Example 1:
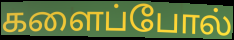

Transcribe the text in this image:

களைப்போல்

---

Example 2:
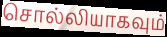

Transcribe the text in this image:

சொல்லியாகவும்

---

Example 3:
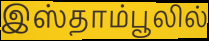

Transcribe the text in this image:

இஸ்தாம்பூலில்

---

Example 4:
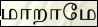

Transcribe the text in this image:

மாறாமே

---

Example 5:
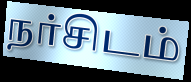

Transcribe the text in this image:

நர்சிடம்